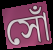
সোঁ